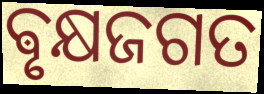
ଵୃକ୍ଷଜଗତ